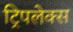
ट्रिपलेक्स